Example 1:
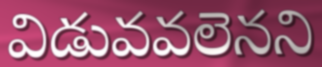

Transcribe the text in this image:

విడువవలెనని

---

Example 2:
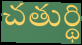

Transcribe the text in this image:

చతుర్థి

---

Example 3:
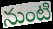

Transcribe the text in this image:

నుంటి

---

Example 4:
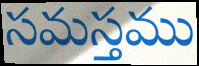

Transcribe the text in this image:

సమస్తము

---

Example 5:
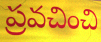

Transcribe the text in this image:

ప్రవచించి